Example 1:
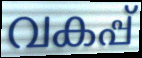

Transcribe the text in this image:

വകപ്പ്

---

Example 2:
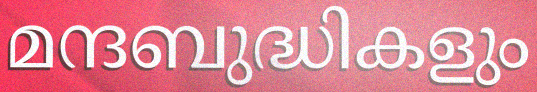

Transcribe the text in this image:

മന്ദബുദ്ധികളും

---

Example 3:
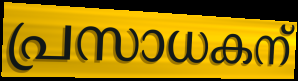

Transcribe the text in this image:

പ്രസാധകന്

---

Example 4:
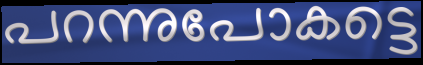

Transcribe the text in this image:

പറന്നുപോകട്ടെ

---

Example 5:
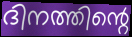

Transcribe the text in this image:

ദിനത്തിന്റെ